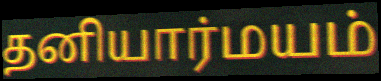
தனியார்மயம்